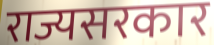
राज्यसरकार